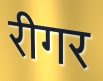
रीगर